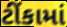
ટીંકામાં